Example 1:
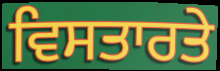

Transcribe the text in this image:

ਵਿਸਤਾਰਤੇ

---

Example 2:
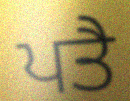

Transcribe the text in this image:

ਪਤੈ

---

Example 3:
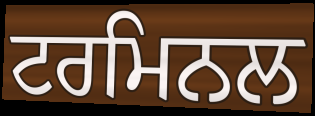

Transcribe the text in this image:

ਟਰਮਿਨਲ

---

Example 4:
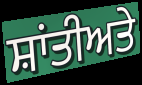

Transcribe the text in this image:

ਸ਼ਾਂਤੀਅਤੇ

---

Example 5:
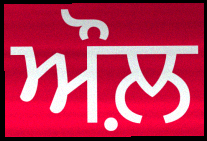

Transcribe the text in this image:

ਔਲ਼